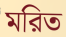
মরিত